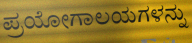
ಪ್ರಯೋಗಾಲಯಗಳನ್ನು